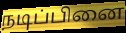
நடிப்பினை